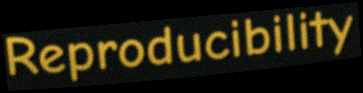
Reproducibility